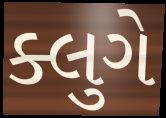
ક્લુગે